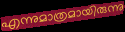
എന്നുമാത്രമായിരുന്നു